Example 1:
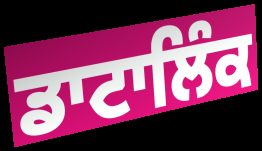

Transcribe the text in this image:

ਡਾਟਾਲਿੰਕ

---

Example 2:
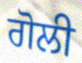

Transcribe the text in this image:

ਗੋਲੀ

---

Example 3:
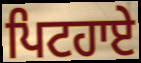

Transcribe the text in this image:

ਪਿਟਹਾਏ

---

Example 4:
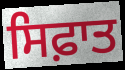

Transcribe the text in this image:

ਸਿਫ਼ਾਤ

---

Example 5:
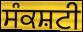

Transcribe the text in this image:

ਸੰਕਸ਼ਟੀ